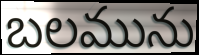
బలమును